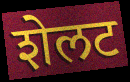
शेलट